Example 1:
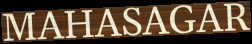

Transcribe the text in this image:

MAHASAGAR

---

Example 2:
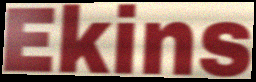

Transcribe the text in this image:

Ekins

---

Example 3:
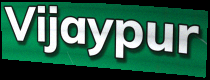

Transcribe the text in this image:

Vijaypur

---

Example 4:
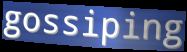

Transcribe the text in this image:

gossiping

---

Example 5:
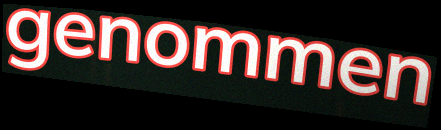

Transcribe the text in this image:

genommen